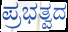
ಪ್ರಭತ್ವದ